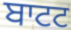
ਬਾਟਟ